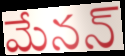
మేనన్